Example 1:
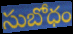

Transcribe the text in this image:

సుబోధం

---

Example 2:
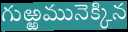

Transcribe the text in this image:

గుఱ్ఱమునెక్కిన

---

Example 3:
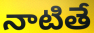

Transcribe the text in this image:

నాటితే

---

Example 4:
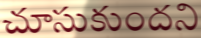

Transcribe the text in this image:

చూసుకుందని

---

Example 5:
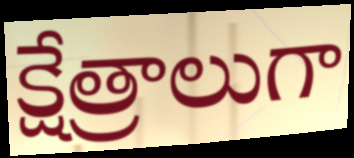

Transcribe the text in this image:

క్షేత్రాలుగా